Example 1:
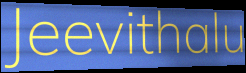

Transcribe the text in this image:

Jeevithalu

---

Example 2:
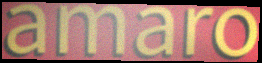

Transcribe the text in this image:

amaro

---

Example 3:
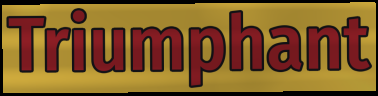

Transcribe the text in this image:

Triumphant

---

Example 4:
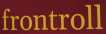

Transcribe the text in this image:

frontroll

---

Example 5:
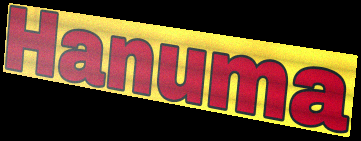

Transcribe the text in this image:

Hanuma